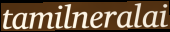
tamilneralai